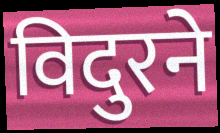
विदुरने